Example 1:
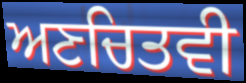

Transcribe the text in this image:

ਅਣਚਿਤਵੀ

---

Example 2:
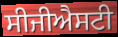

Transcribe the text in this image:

ਸੀਜੀਐਸਟੀ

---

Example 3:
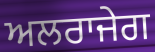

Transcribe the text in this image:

ਅਲਰਾਜੇਗ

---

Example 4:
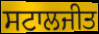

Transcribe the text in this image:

ਸਟਾਲਜੀਤ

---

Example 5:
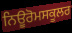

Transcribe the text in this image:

ਨਿਊਰੋਮਸਕੂਲਰ